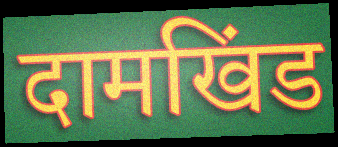
दामखिंड